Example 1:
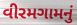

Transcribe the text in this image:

વીરમગામનું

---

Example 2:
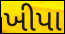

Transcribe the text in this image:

ખીપા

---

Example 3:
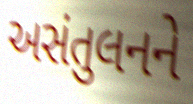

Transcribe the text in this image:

અસંતુલનને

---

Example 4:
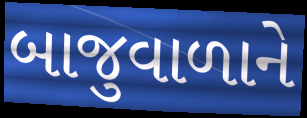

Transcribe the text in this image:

બાજુવાળાને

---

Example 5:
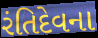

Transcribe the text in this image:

રંતિદેવના